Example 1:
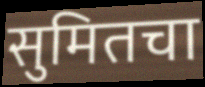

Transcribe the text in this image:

सुमितचा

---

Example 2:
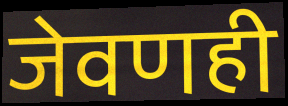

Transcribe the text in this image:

जेवणही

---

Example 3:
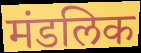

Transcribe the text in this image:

मंडलिक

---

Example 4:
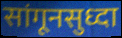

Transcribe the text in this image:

सांगूनसुध्दा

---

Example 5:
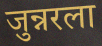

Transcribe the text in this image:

जुन्नरला